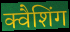
क्वैशिंग